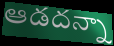
ఆడదన్నా